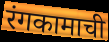
रंगकामाची